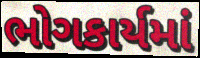
ભોગકાર્યમાં